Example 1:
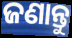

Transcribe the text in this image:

ଜଣାନ୍ତୁ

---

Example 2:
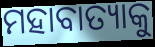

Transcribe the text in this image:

ମହାବାତ୍ୟାକୁ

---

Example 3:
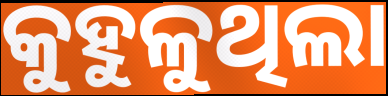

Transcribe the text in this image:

କୁହୁଳୁଥିଲା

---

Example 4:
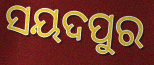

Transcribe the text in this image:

ସୟଦପୁର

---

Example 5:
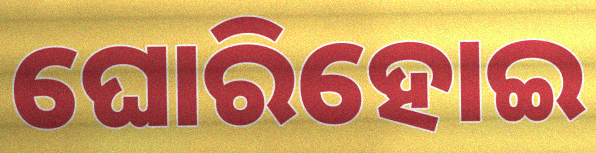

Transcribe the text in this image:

ଘୋରିହୋଇ